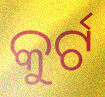
କୁର୍ଟ